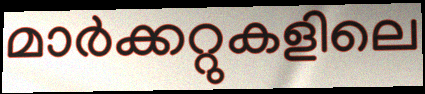
മാർക്കറ്റുകളിലെ